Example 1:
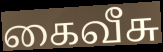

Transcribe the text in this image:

கைவீசு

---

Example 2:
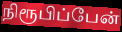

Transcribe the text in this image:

நிரூபிப்பேன்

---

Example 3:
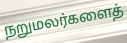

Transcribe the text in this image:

நறுமலர்களைத்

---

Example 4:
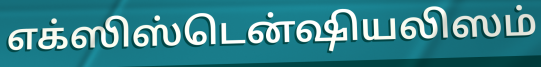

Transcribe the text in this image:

எக்ஸிஸ்டென்ஷியலிஸம்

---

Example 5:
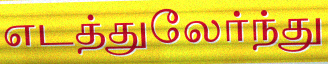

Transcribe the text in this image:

எடத்துலேர்ந்து